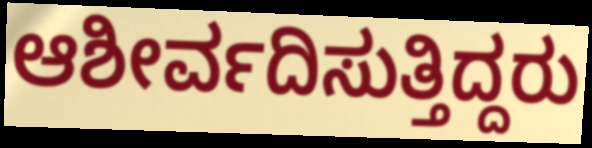
ಆಶೀರ್ವದಿಸುತ್ತಿದ್ದರು